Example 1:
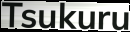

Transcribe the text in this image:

Tsukuru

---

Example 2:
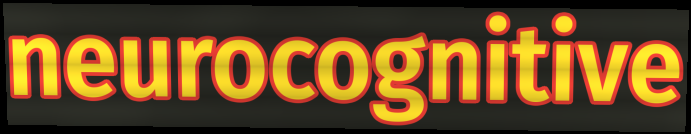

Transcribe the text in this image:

neurocognitive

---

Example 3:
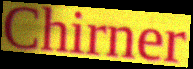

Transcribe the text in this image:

Chirner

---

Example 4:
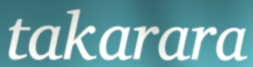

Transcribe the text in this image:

takarara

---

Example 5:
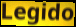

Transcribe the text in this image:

Legido